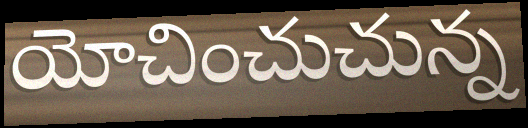
యోచించుచున్న